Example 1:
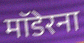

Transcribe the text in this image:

मॉडेरना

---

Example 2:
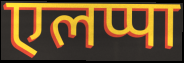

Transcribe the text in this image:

एलप्पा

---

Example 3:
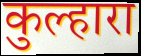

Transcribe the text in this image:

कुल्हारा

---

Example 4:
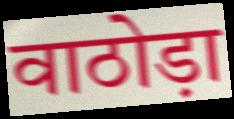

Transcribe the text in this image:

वाठोड़ा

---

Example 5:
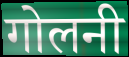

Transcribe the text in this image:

गोलनी